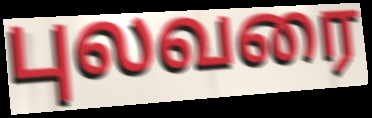
புலவரை